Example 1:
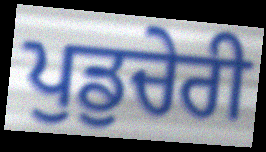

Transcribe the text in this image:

ਪੁਡੁਚੇਰੀ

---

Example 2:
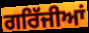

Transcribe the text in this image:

ਗਰਿੱਜੀਆਂ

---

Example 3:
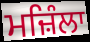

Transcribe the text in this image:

ਮਜ਼ਿੰਲਾ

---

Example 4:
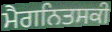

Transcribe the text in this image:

ਮੈਗਨਿਤਸਕੀ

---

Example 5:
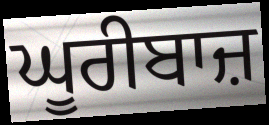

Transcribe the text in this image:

ਘੂਰੀਬਾਜ਼